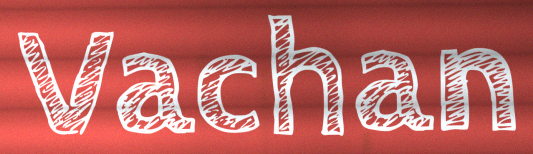
Vachan